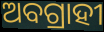
ଅବଗ୍ରାହୀ